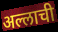
अल्लाची